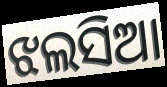
ଝଲସିଆ